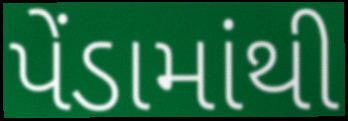
પેંડામાંથી